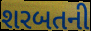
શરબતની